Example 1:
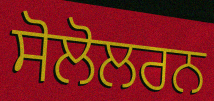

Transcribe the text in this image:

ਸੋਲੋਲਰਨ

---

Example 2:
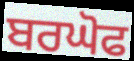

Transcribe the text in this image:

ਬਰਘੋਫ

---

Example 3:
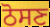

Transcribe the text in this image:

ਠੋਸਣ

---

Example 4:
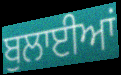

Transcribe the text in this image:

ਬੁਲਾਈਆਂ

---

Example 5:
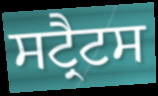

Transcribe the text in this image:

ਸਟ੍ਰੈਟਸ